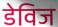
डेविज